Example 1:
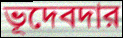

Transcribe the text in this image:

ভূদেবদার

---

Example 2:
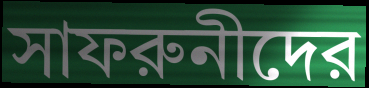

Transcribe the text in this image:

সাফরুনীদের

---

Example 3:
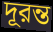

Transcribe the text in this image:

দূরন্ত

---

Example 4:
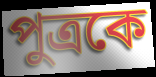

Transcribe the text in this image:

পুত্রকে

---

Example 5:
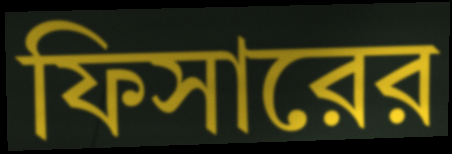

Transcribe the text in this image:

ফিসারের